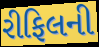
રીફિલની